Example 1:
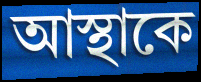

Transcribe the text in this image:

আস্থাকে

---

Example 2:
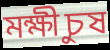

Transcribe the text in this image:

মক্ষীচুষ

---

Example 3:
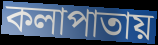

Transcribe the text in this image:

কলাপাতায়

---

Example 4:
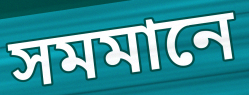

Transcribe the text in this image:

সমমানে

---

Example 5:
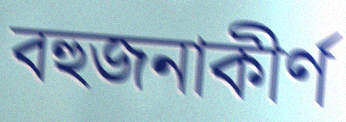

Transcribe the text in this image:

বহুজনাকীর্ণ